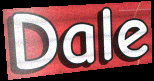
Dale